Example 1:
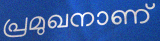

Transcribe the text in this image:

പ്രമുഖനാണ്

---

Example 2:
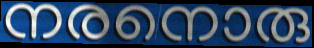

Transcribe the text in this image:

നരനൊരു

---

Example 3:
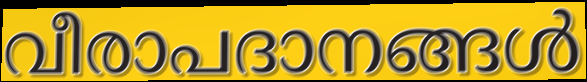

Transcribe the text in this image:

വീരാപദാനങ്ങൾ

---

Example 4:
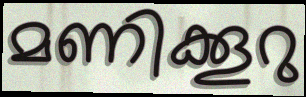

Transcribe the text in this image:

മണിക്കൂറു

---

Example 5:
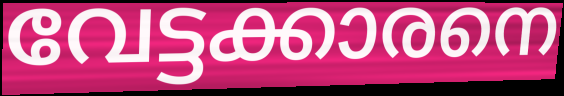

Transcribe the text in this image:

വേട്ടക്കാരനെ